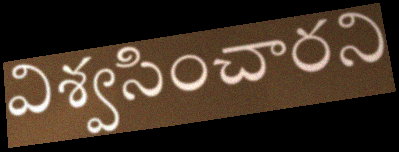
విశ్వసించారని